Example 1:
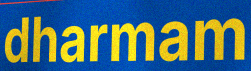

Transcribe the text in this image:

dharmam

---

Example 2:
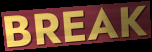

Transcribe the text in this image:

BREAK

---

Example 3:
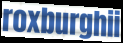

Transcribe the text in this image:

roxburghii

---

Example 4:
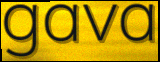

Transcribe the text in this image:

gava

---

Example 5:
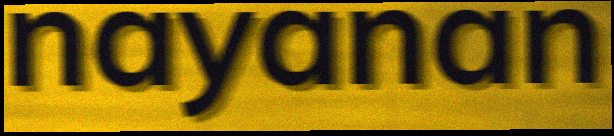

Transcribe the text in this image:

nayanan